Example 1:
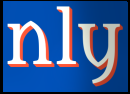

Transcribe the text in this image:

nly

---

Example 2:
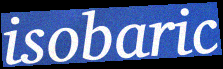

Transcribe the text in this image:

isobaric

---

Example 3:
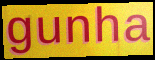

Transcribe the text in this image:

gunha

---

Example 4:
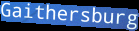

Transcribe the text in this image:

Gaithersburg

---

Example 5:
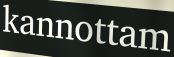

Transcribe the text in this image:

kannottam